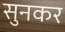
सुनकर